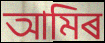
আমিৰ